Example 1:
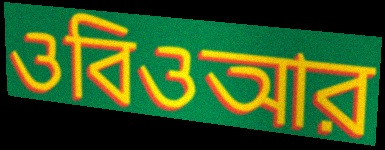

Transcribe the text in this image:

ওবিওআর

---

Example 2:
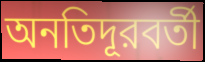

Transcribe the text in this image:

অনতিদূরবর্তী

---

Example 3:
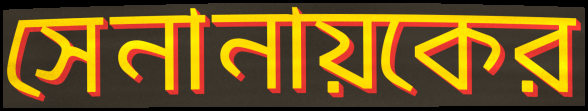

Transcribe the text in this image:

সেনানায়কের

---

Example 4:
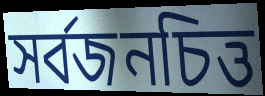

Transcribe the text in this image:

সর্বজনচিত্ত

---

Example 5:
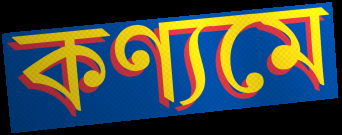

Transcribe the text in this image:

কণ্যমে